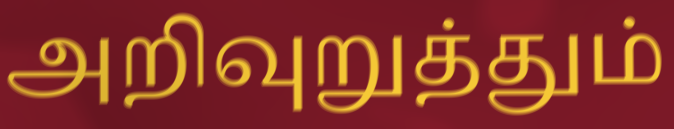
அறிவுறுத்தும்